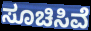
ಸೂಚಿಸಿವೆ